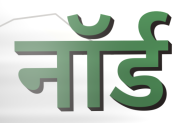
नॉर्ड